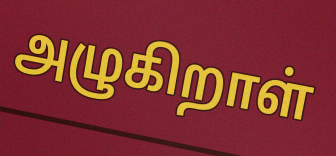
அழுகிறாள்